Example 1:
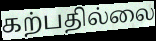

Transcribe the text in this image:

கற்பதில்லை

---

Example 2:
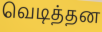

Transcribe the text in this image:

வெடித்தன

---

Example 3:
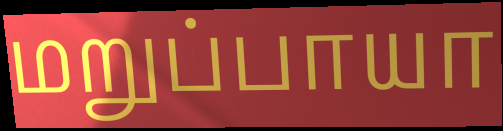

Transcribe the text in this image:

மறுப்பாயா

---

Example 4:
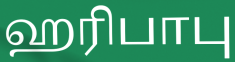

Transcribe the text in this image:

ஹரிபாபு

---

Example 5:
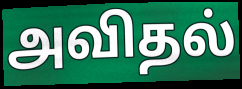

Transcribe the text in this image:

அவிதல்